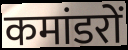
कमांडरों